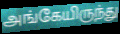
அங்கேயிருந்து